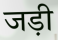
जड़ी